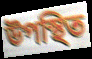
উপস্থিত